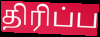
திரிப்ப